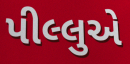
પીલ્લુએ